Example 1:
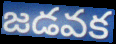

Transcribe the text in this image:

జడవక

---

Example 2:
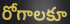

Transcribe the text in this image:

రోగాలకూ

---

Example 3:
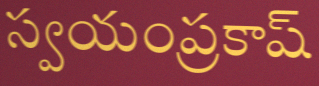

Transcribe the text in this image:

స్వయంప్రకాష్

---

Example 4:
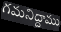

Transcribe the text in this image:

గమనిద్దాము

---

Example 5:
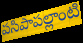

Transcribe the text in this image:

పసిపాపల్లాంటి